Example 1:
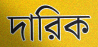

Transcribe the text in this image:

দারিক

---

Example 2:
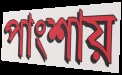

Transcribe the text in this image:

পাংশায়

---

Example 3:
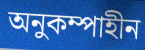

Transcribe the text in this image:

অনুকম্পাহীন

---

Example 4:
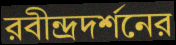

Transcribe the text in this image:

রবীন্দ্রদর্শনের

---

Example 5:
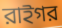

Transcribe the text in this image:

রাইগর